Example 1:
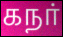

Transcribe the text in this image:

கநர்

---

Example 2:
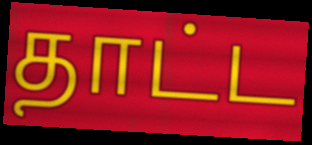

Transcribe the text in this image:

தாட்ட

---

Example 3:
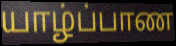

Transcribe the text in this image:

யாழ்ப்பாண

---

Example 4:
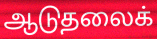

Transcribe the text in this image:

ஆடுதலைக்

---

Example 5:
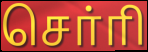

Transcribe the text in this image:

செர்ரி